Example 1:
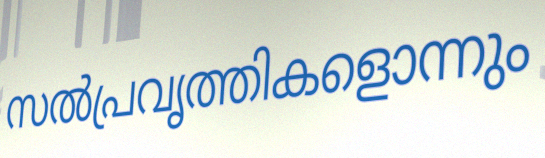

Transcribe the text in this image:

സൽപ്രവൃത്തികളൊന്നും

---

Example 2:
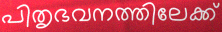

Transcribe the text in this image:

പിതൃഭവനത്തിലേക്ക്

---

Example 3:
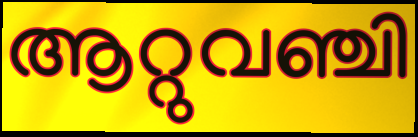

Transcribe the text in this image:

ആറ്റുവഞ്ചി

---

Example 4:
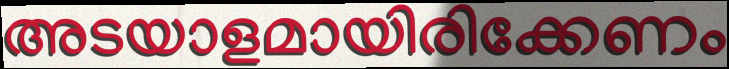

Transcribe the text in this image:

അടയാളമായിരിക്കേണം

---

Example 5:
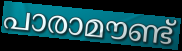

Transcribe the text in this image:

പാരാമൗണ്ട്